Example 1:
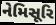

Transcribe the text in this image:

નેમિસૂરિ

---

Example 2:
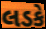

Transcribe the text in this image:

લડકે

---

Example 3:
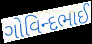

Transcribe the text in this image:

ગોવિન્દભાઈ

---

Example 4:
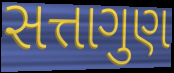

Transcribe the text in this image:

સત્તાગુણ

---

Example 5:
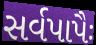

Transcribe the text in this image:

સર્વપાપૈઃ